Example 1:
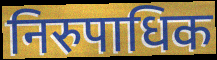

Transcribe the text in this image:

निरुपाधिक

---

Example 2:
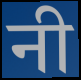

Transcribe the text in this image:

नी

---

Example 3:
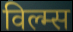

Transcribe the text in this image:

विल्म्स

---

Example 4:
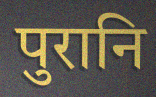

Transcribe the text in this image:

पुरानि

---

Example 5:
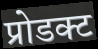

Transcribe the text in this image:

प्रोडक्ट